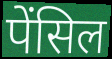
पेंसिल